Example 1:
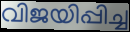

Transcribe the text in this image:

വിജയിപ്പിച്ച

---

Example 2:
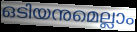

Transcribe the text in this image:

ഒടിയനുമെല്ലാം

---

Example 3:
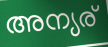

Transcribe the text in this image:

അന്യര്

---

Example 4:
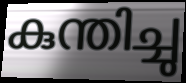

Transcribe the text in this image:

കുന്തിച്ചു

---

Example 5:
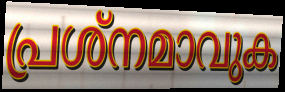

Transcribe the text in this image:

പ്രശ്നമാവുക